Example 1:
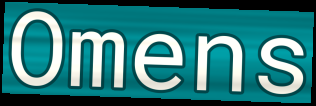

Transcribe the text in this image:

Omens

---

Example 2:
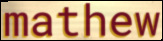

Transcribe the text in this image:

mathew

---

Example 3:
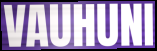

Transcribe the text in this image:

VAUHUNI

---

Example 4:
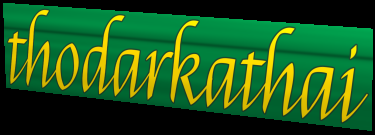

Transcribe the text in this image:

thodarkathai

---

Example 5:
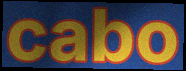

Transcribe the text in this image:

cabo